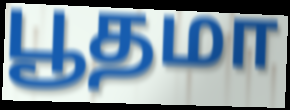
பூதமா